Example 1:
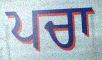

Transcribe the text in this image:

ਪਚਾ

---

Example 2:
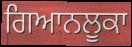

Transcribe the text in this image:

ਗਿਆਨਲੂਕਾ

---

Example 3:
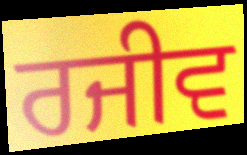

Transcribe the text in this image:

ਰਜੀਵ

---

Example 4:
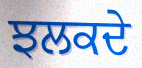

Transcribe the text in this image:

ਝਲਕਦੇ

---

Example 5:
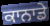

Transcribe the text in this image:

ਕਾਨਾਡੇ